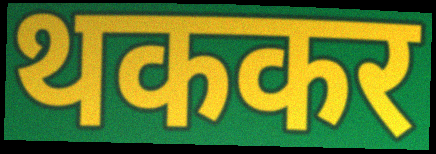
थककर